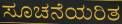
ಸೂಚನೆಯರಿತ